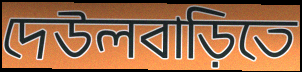
দেউলবাড়িতে